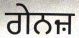
ਗੇਨਜ਼